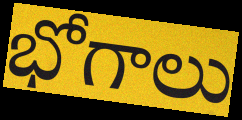
భోగాలు